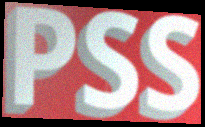
PSS